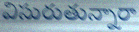
విసురుతున్నారా